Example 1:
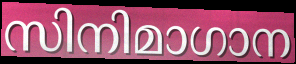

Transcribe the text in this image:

സിനിമാഗാന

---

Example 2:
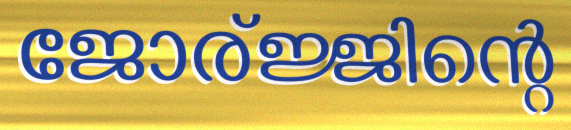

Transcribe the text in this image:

ജോര്ജ്ജിന്റെ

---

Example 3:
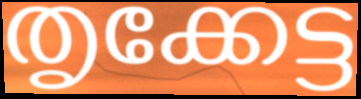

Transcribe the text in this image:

തൃക്കേട്ട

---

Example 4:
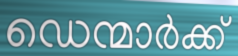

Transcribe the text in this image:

ഡെന്മാർക്ക്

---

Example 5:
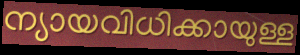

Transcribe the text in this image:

ന്യായവിധിക്കായുള്ള